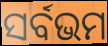
ସର୍ବଭମ